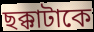
ছক্কাটাকে